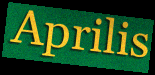
Aprilis